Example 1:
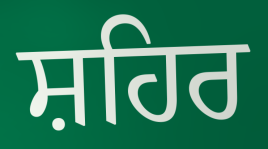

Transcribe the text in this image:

ਸ਼ਹਿਰ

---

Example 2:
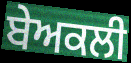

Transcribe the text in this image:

ਬੇਅਕਲੀ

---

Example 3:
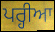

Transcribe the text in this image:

ਪਰ੍ਹੀਆ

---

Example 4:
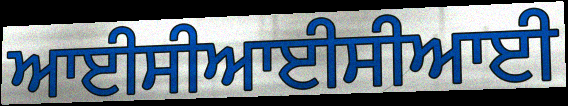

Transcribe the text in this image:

ਆਈਸੀਆਈਸੀਆਈ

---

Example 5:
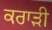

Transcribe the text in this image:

ਕਰਾੜੀ